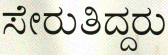
ಸೇರುತಿದ್ದರು